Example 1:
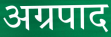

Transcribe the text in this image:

अग्रपाद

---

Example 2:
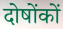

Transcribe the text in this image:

दोषोंकों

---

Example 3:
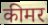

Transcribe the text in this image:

कीमर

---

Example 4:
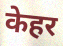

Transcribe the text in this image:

केहर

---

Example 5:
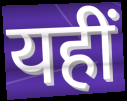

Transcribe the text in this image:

यहीं